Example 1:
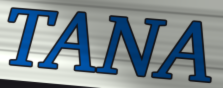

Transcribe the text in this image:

TANA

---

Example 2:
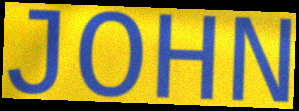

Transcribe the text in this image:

JOHN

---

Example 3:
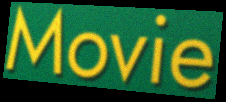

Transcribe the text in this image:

Movie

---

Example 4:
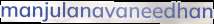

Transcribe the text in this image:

manjulanavaneedhan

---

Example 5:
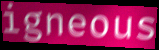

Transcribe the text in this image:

igneous